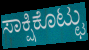
ಸಾಕ್ಷಿಕೊಟ್ಟು